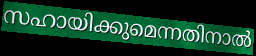
സഹായിക്കുമെന്നതിനാൽ